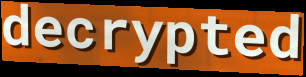
decrypted